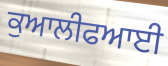
ਕੁਆਲੀਫਆਈ